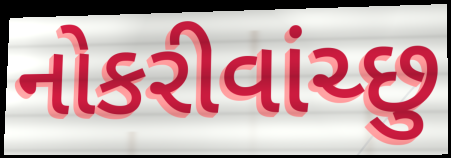
નોકરીવાંચ્છુ